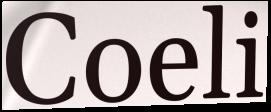
Coeli